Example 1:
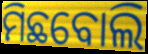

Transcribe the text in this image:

ମିଛବୋଲି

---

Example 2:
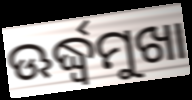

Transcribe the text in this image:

ଊର୍ଦ୍ଧ୍ବମୁଖା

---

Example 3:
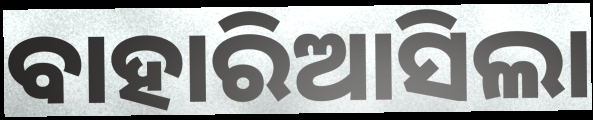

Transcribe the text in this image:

ବାହାରିଆସିଲା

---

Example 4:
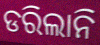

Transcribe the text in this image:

ଡରିଲାନି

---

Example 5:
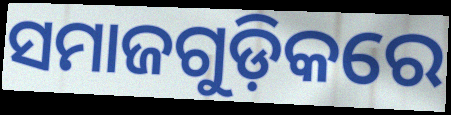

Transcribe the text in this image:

ସମାଜଗୁଡ଼ିକରେ